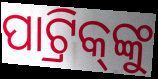
ପାଟ୍ରିକ୍‌ଙ୍କୁ